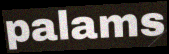
palams